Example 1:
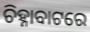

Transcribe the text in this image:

ଚିହ୍ନାବାଟରେ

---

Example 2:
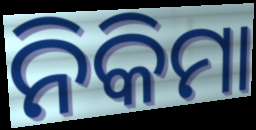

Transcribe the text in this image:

ନିକିମା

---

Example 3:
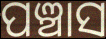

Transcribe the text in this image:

ପଞ୍ଚାସ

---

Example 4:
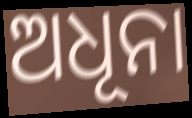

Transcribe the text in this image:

ଅଧୂନା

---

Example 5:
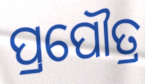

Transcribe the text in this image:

ପ୍ରପୌତ୍ର